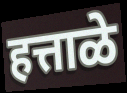
हत्ताळे